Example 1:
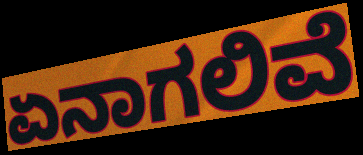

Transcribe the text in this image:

ಏನಾಗಲಿವೆ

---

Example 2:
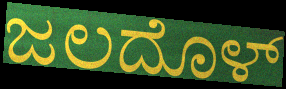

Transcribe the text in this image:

ಜಲದೊಳ್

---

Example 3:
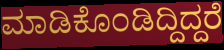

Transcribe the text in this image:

ಮಾಡಿಕೊಂಡಿದ್ದಿದ್ದರೆ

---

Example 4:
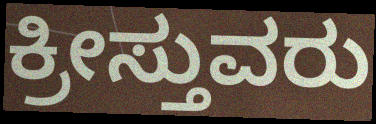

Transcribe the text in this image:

ಕ್ರೀಸ್ತುವರು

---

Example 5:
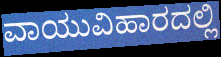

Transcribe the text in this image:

ವಾಯುವಿಹಾರದಲ್ಲಿ